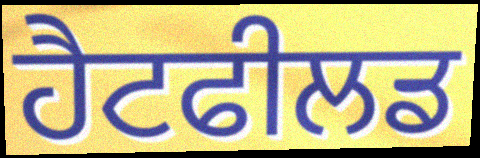
ਹੈਟਫੀਲਡ